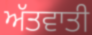
ਅੱਤਵਾਤੀ